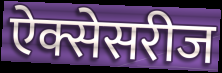
ऐक्सेसरीज